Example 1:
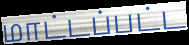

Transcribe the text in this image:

மாட்டப்பட்ட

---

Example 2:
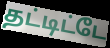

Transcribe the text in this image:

தட்டிட்டே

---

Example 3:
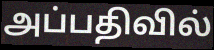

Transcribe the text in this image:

அப்பதிவில்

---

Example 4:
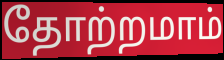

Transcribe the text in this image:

தோற்றமாம்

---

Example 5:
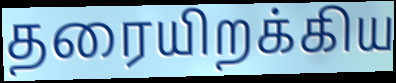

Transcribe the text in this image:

தரையிறக்கிய